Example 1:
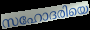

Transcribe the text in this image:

സഹോദരിയെ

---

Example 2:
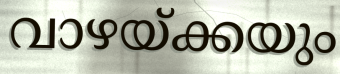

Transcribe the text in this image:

വാഴയ്ക്കയും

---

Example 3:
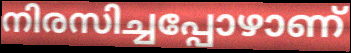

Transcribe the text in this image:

നിരസിച്ചപ്പോഴാണ്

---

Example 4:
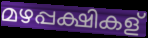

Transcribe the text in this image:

മഴപ്പക്ഷികള്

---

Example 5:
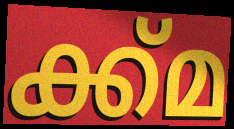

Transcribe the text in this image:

ക്ക്മ